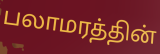
பலாமரத்தின்